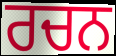
ਰਚਨ